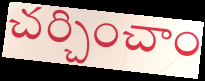
చర్చించాం